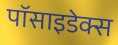
पॉसाइडेक्स